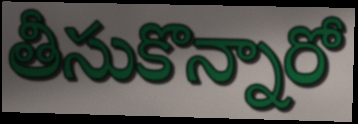
తీసుకొన్నారో